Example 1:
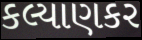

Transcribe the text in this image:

કલ્યાણકર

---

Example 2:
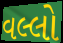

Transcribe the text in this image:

વલ્લો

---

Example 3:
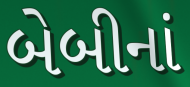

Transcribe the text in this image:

બેબીનાં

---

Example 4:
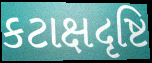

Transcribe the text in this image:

કટાક્ષદૃષ્ટિ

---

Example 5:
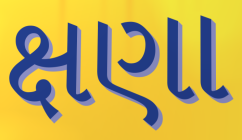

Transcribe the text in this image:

ક્ષણા